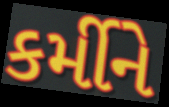
કર્મીને